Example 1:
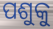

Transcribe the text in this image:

ପଶୁକୁ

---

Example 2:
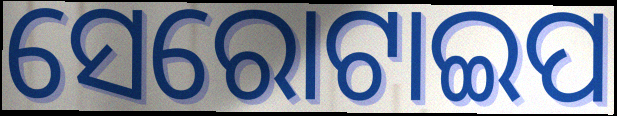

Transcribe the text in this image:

ସେରୋଟାଇପ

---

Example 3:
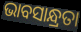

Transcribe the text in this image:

ଭାବସାନ୍ଧ୍ରତା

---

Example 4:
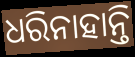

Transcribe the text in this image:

ଧରିନାହାନ୍ତି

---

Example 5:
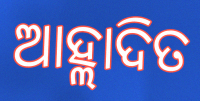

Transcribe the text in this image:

ଆହ୍ଲାଦିତ